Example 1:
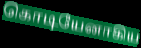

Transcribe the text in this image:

கொடியேனாகிய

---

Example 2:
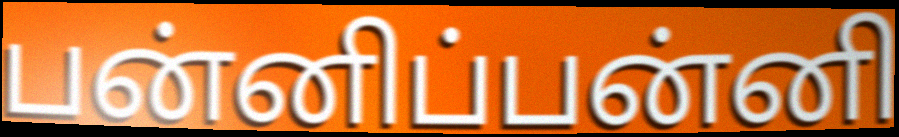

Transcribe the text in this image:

பன்னிப்பன்னி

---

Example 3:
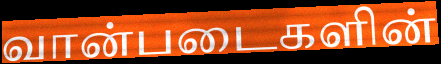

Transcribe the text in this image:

வான்படைகளின்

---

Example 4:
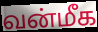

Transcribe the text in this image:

வன்மீக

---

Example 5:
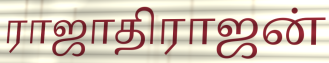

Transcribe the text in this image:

ராஜாதிராஜன்